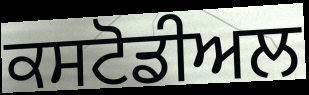
ਕਸਟੋਡੀਅਲ